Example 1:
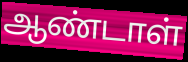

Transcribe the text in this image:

ஆண்டாள்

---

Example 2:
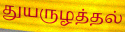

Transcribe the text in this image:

துயருழத்தல்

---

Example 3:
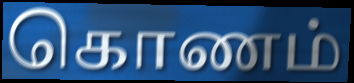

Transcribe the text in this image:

கொணம்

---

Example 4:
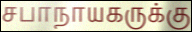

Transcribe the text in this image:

சபாநாயகருக்கு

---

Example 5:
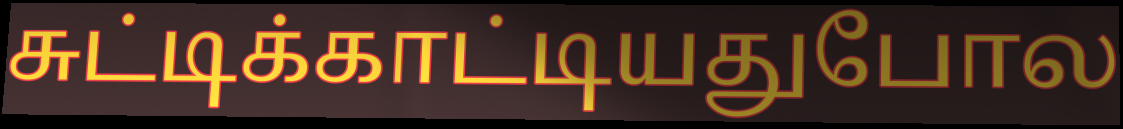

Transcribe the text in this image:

சுட்டிக்காட்டியதுபோல